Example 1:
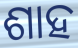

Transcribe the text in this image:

ଶାହ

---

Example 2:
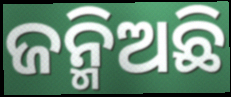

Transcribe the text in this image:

ଜନ୍ମିଅଛି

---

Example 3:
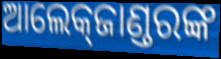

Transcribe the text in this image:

ଆଲେକ୍‍ଜାଣ୍ଡରଙ୍କ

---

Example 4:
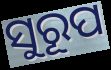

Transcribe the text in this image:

ସୁରୂପ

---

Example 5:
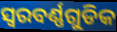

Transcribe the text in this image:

ସ୍ୱରବର୍ଣ୍ଣଗୁଡିକ